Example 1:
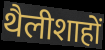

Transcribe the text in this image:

थैलीशाहों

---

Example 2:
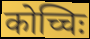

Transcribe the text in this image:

कोच्चिः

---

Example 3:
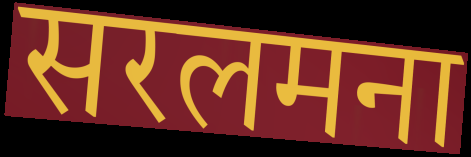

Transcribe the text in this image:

सरलमना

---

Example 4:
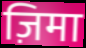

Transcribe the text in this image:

ज़िमा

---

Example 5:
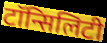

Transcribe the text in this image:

टॉन्सिलिटी